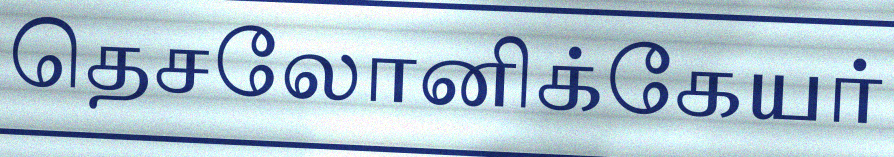
தெசலோனிக்கேயர்